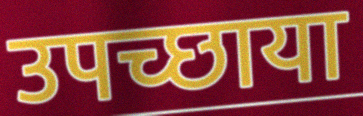
उपच्छाया